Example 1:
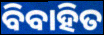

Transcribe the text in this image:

ବିବାହିତ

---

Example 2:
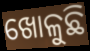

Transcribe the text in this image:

ଖୋଳୁଛି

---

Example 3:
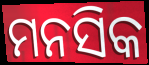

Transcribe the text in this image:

ମନସିକ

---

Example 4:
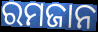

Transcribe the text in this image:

ରମଜାନ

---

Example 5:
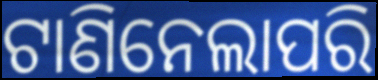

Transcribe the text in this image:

ଟାଣିନେଲାପରି